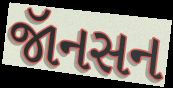
જૉનસન